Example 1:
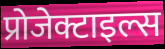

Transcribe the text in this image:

प्रोजेक्टाइल्स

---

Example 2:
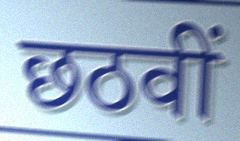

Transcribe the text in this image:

छठवीं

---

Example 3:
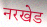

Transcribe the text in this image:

नरखेड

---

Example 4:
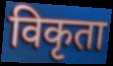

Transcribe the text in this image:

विकृता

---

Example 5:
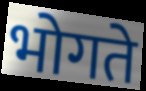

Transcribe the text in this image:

भोगते